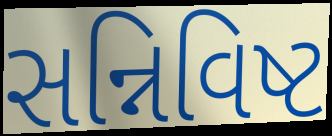
સન્નિવિષ્ટ